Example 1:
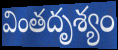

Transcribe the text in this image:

వింతదృశ్యం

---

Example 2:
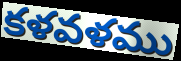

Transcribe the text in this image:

కళవళము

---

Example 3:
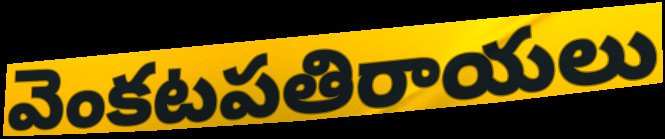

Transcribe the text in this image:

వెంకటపతిరాయలు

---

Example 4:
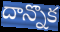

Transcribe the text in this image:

దాన్నొక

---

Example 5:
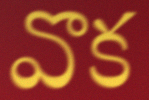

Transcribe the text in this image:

వొక